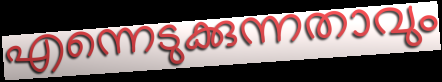
എന്നെടുക്കുന്നതാവും